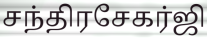
சந்திரசேகர்ஜி